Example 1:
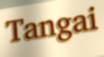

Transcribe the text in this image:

Tangai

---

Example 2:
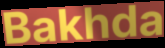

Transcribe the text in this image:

Bakhda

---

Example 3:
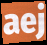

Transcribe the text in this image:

aej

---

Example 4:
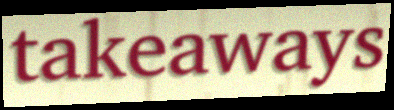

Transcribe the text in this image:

takeaways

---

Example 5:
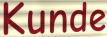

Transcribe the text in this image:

Kunde